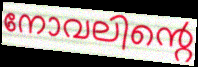
നോവലിന്റെ